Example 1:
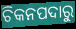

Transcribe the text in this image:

ଚିକନପଦାରୁ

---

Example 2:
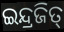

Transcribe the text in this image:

ଇନ୍ଦ୍ରଜିତ୍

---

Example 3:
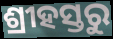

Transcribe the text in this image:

ଶ୍ରୀହସ୍ତରୁ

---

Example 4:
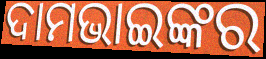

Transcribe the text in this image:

ଦାମଭାଇଙ୍କର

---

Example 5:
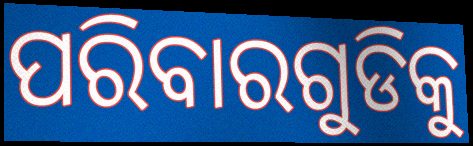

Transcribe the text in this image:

ପରିବାରଗୁଡିକୁ